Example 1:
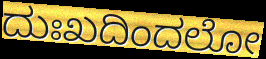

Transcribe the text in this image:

ದುಃಖದಿಂದಲೋ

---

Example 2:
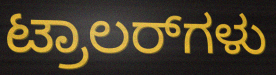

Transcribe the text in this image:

ಟ್ರಾಲರ್‌ಗಳು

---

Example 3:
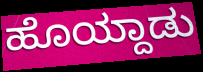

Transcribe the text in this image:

ಹೊಯ್ದಾಡು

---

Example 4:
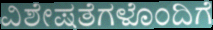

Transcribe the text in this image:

ವಿಶೇಷತೆಗಳೊಂದಿಗೆ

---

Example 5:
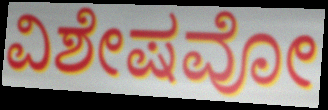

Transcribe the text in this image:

ವಿಶೇಷವೋ